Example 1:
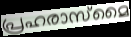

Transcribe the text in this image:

പ്രഹരാസ്മൈ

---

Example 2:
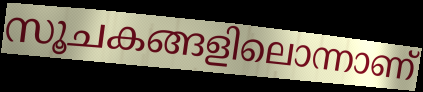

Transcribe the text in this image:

സൂചകങ്ങളിലൊന്നാണ്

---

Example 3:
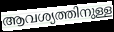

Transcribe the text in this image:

ആവശ്യത്തിനുള്ള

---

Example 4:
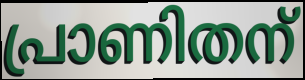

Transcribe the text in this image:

പ്രാണിതന്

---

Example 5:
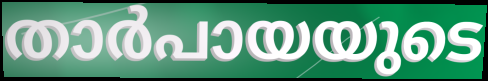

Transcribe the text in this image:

താർപായയുടെ